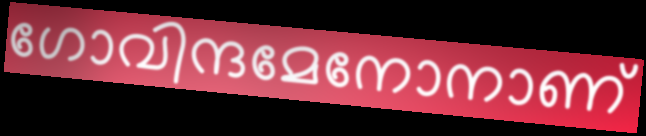
ഗോവിന്ദമേനോനാണ്